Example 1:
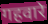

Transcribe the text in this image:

गहवारे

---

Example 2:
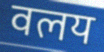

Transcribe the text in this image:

वलय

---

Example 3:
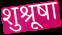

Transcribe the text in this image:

शुश्रूषा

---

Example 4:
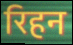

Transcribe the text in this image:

रिहन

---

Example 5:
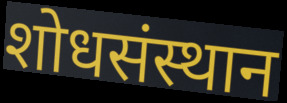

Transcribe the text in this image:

शोधसंस्थान